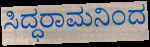
ಸಿದ್ಧರಾಮನಿಂದ